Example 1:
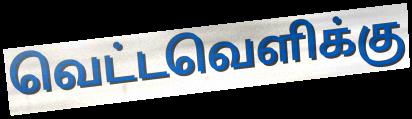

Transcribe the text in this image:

வெட்டவெளிக்கு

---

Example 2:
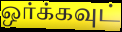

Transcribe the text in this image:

ஒர்க்கவுட்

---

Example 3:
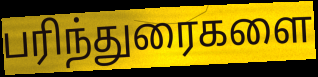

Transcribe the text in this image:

பரிந்துரைகளை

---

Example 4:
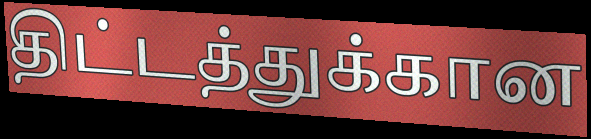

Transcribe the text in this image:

திட்டத்துக்கான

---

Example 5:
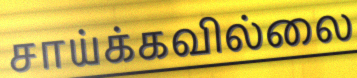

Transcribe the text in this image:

சாய்க்கவில்லை